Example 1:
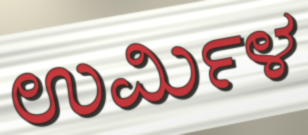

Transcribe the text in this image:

ಉರ್ಮಿಳ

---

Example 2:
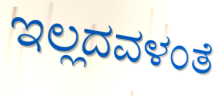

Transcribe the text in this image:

ಇಲ್ಲದವಳಂತೆ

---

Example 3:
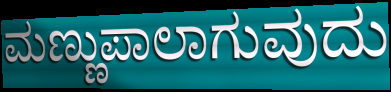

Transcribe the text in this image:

ಮಣ್ಣುಪಾಲಾಗುವುದು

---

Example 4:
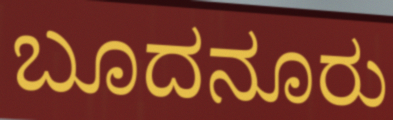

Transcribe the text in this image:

ಬೂದನೂರು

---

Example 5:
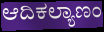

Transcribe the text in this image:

ಆದಿಕಲ್ಯಾಣಂ